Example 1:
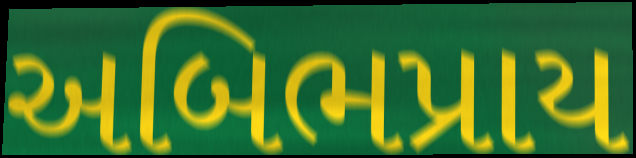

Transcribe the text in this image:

અબિભપ્રાય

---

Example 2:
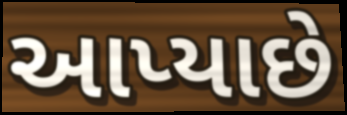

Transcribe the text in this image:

આપ્યાછે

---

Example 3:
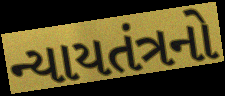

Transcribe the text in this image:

ન્યાયતંત્રનો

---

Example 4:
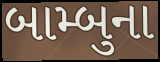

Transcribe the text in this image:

બામ્બુના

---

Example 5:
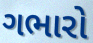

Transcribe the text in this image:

ગભારો